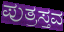
ಪುತ್ರಸ್ತವ